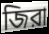
জিরা